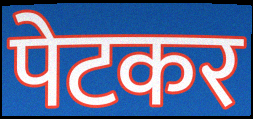
पेटकर